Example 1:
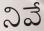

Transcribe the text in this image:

నివే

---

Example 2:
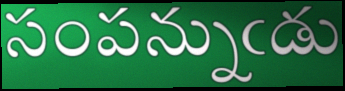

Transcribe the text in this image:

సంపన్నుఁడు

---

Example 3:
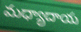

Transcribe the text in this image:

మధ్యాదాయ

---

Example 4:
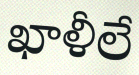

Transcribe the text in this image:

ఖాళీలే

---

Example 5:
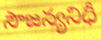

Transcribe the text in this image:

సౌజన్యనిధీ